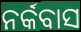
ନର୍କବାସ